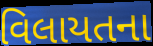
વિલાયતના